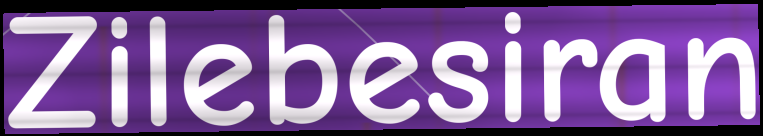
Zilebesiran